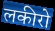
लकीरो